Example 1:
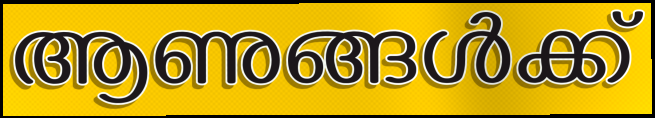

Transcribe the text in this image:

ആണുങ്ങൾക്ക്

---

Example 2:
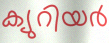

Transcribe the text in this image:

ക്യുറിയർ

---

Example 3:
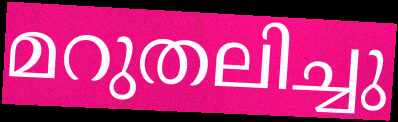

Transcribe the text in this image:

മറുതലിച്ചു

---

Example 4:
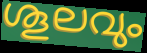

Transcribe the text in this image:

ശൂലവും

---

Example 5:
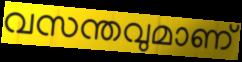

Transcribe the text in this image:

വസന്തവുമാണ്